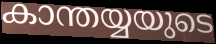
കാന്തയ്യയുടെ